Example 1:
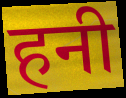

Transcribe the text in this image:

हनी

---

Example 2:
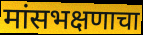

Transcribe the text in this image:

मांसभक्षणाचा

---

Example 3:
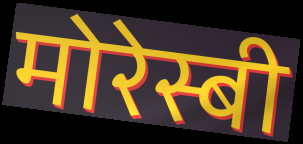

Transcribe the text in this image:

मोरेस्बी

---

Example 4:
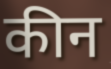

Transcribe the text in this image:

कीन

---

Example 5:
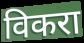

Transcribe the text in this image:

विकरा